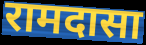
रामदासा